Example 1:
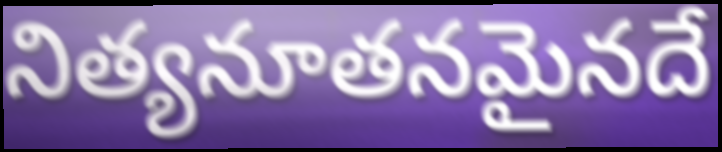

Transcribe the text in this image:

నిత్యనూతనమైనదే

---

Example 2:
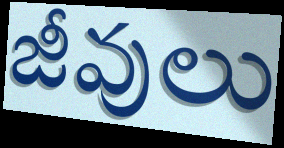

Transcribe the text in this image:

జీవులు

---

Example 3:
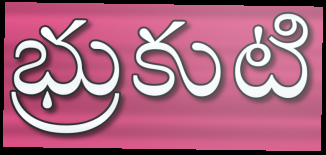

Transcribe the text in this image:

భ్రుకుటి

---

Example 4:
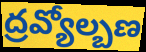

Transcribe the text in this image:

ద్రవ్యోల్బణ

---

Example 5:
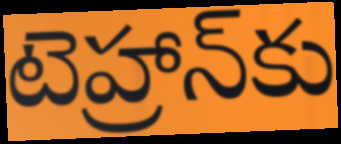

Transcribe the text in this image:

టెహ్రాన్‌కు